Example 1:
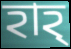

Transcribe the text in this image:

হাহ্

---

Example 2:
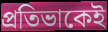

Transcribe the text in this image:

প্রতিভাকেই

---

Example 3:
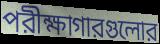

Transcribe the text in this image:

পরীক্ষাগারগুলোর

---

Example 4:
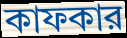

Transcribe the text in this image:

কাফকার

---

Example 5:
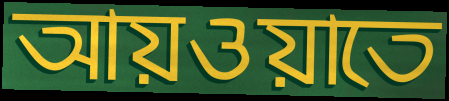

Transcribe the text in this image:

আয়ওয়াতে